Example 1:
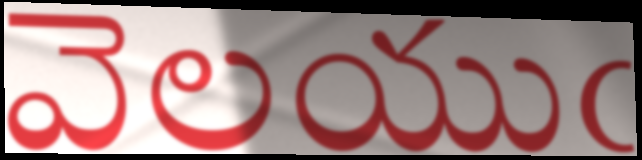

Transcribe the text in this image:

వెలయుఁ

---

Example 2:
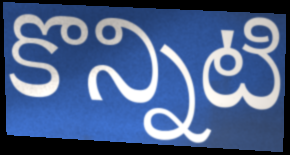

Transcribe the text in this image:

కొన్నిటి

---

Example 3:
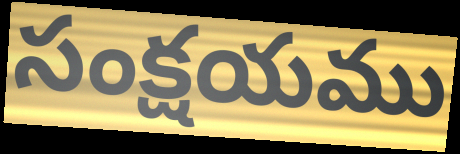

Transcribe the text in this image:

సంక్షయము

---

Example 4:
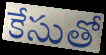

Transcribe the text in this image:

కేసుతో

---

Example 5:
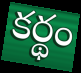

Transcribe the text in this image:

కర్థం